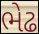
ભેઢ